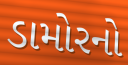
ડામોરનો